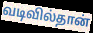
வடிவில்தான்